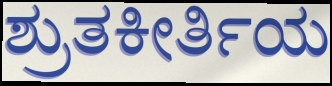
ಶ್ರುತಕೀರ್ತಿಯ